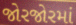
જોરજોરમાં